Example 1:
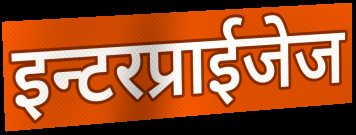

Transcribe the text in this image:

इन्टरप्राईजेज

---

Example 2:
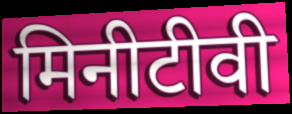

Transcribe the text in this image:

मिनीटीवी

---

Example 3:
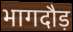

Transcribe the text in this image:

भागदौड़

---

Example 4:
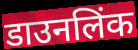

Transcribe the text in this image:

डाउनलिंक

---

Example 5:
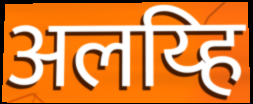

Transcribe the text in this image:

अलय्हि